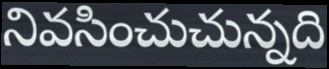
నివసించుచున్నది